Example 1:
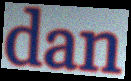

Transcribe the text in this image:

dan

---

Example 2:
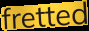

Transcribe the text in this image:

fretted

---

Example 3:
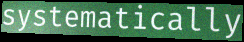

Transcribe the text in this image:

systematically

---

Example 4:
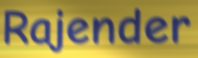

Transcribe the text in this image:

Rajender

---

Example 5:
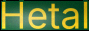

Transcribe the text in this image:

Hetal